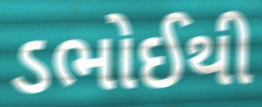
ડભોઈથી